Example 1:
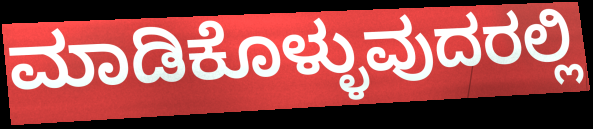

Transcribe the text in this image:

ಮಾಡಿಕೊಳ್ಳುವುದರಲ್ಲಿ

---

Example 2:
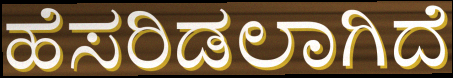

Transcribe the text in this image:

ಹೆಸರಿಡಲಾಗಿದೆ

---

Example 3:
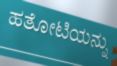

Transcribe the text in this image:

ಹತೋಟಿಯನ್ನು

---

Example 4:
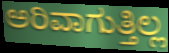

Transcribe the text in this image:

ಅರಿವಾಗುತ್ತಿಲ್ಲ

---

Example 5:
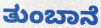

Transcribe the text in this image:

ತುಂಬಾನೆ